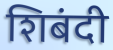
शिबंदी